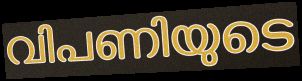
വിപണിയുടെ